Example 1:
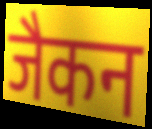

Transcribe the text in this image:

जैकन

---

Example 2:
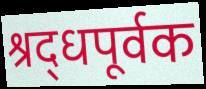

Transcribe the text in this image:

श्रद्धपूर्वक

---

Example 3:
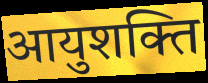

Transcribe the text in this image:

आयुशक्ति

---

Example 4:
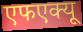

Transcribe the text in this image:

एफएक्यू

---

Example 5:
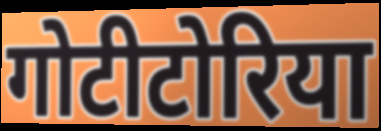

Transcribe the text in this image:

गोटीटोरिया